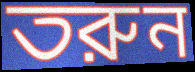
তরুন